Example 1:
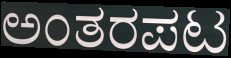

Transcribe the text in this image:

ಅಂತರಪಟ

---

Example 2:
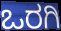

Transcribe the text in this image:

ಒರಗಿ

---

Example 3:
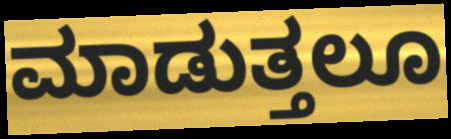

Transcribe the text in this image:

ಮಾಡುತ್ತಲೂ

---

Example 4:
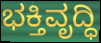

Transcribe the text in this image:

ಭಕ್ತಿವೃದ್ಧಿ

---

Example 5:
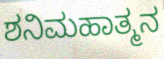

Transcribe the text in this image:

ಶನಿಮಹಾತ್ಮನ